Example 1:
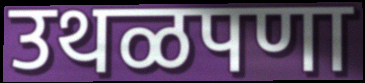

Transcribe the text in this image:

उथळपणा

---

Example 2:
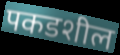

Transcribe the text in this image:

पकडशील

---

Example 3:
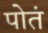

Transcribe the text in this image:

पोतं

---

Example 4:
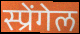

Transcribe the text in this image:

स्प्रेंगेल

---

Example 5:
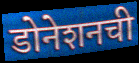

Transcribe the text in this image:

डोनेशनची